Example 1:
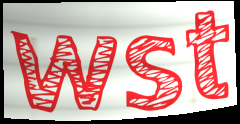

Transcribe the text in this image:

wst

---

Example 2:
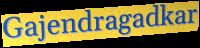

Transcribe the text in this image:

Gajendragadkar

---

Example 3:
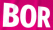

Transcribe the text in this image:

BOR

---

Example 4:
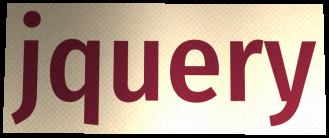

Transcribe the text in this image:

jquery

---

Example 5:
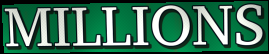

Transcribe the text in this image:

MILLIONS